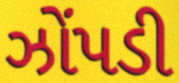
ઝોંપડી